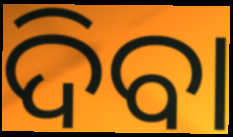
ଦିବା